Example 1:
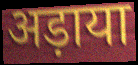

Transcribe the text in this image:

अड़ाया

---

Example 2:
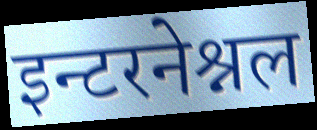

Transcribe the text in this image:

इन्टरनेश्नल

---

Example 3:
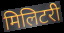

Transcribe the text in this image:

मिलिटरी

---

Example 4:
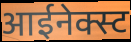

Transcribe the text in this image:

आईनेक्स्ट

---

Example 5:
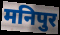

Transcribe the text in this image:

मनिपुर